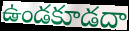
ఉండకూడదా